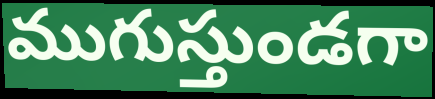
ముగుస్తుండగా